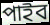
পাইব